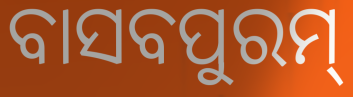
ବାସବପୁରମ୍